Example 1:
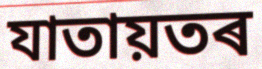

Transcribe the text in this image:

যাতায়তৰ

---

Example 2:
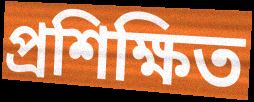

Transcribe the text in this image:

প্ৰশিক্ষিত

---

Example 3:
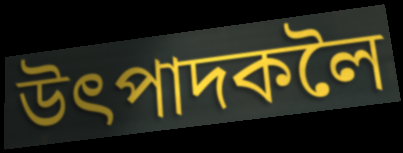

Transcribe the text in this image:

উৎপাদকলৈ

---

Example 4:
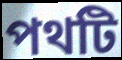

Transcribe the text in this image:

পথটি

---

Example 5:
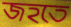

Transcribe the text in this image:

জহতে